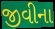
જીવીના